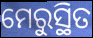
ମେରୁସ୍ଥିତ